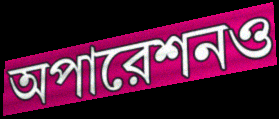
অপারেশনও